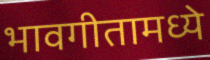
भावगीतामध्ये